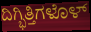
ದಿಗ್ಭಿತ್ತಿಗಳೊಳ್